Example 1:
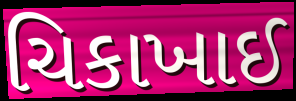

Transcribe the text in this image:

ચિકાખાઈ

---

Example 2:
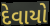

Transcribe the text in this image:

દેવાયો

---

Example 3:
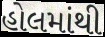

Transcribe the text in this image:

હોલમાંથી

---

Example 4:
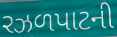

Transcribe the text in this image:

રઝળપાટની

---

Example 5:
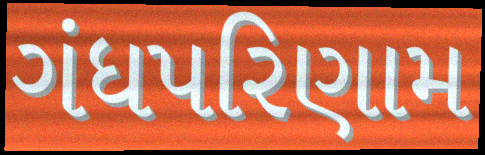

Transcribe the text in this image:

ગંધપરિણામ